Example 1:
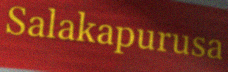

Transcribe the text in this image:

Salakapurusa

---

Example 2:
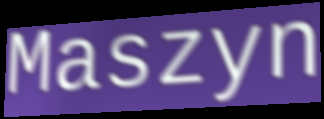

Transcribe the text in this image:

Maszyn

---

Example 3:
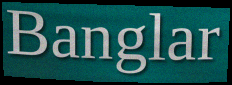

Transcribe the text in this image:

Banglar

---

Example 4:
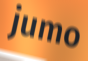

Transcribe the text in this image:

jumo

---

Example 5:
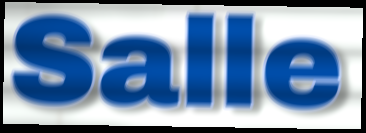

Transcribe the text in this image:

Salle